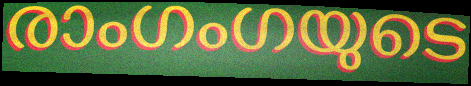
രാംഗംഗയുടെ